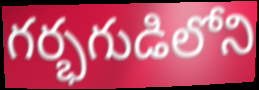
గర్భగుడిలోని